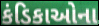
કંડિકાઓના